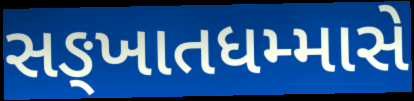
સઙ્ખાતધમ્માસે